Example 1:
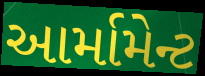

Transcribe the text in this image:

આર્મામેન્ટ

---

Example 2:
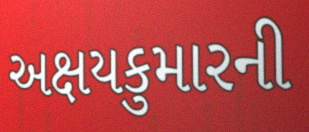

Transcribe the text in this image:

અક્ષયકુમારની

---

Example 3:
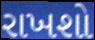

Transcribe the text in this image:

રાખશો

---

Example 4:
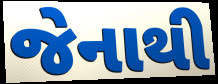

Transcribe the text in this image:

જેનાથી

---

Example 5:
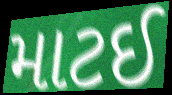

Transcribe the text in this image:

માટઈ